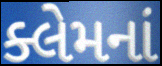
ક્લેમનાં